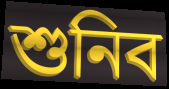
শুনিব